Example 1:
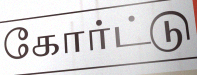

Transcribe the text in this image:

கோர்ட்டு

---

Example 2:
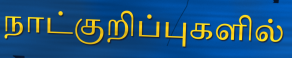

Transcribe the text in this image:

நாட்குறிப்புகளில்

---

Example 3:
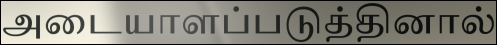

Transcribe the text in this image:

அடையாளப்படுத்தினால்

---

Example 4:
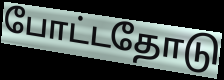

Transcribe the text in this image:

போட்டதோடு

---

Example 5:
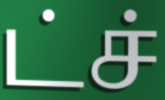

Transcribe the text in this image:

ட்ச்